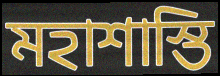
মহাশাস্তি